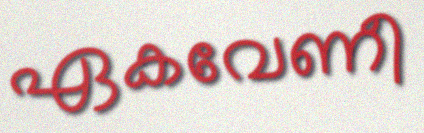
ഏകവേണീ